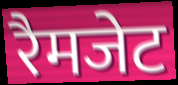
रैमजेट